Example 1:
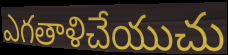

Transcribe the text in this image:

ఎగతాళిచేయుచు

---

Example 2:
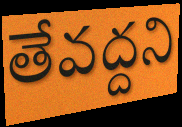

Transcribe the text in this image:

తేవద్దని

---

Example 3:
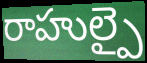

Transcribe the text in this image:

రాహుల్పై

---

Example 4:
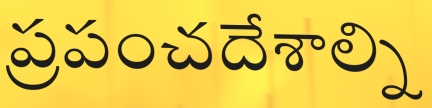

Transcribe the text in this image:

ప్రపంచదేశాల్ని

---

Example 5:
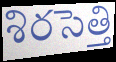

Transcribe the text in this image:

శిరసెత్తి